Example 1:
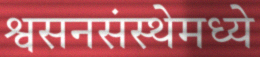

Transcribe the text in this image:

श्वसनसंस्थेमध्ये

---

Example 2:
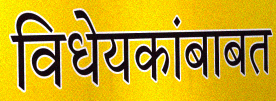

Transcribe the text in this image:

विधेयकांबाबत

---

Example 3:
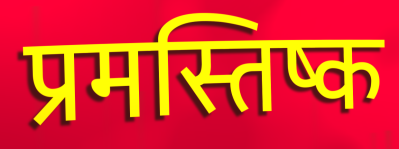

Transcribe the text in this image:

प्रमस्तिष्क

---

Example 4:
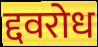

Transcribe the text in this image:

द्दवरोध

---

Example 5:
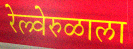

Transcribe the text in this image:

रेल्वेरुळाला